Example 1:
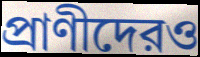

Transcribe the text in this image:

প্রাণীদেরও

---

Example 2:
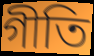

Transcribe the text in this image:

গীতি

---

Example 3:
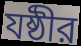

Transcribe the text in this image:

যষ্ঠীর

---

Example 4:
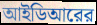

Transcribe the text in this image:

আইডিআরের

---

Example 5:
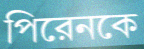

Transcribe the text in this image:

পিরেনকে